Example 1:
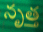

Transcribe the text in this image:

నృత్త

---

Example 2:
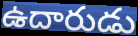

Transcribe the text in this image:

ఉదారుడు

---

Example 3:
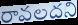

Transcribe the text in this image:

రావలదని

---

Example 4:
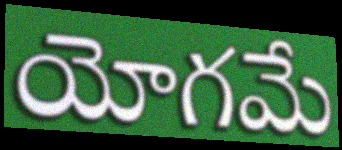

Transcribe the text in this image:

యోగమే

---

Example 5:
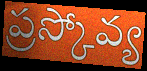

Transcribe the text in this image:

ప్రస్కోవ్య